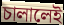
চালালেই